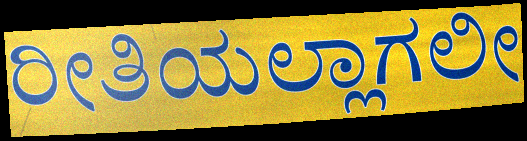
ರೀತಿಯಲ್ಲಾಗಲೀ